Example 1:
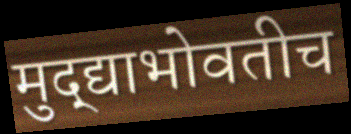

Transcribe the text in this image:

मुद्द्याभोवतीच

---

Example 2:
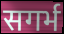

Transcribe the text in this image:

सगर्भ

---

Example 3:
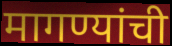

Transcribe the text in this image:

मागण्यांची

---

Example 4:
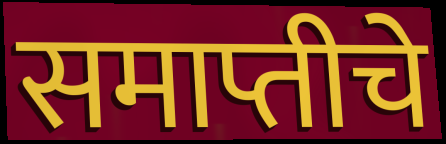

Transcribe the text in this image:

समाप्तीचे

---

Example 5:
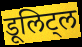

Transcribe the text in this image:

डूलिट्ल